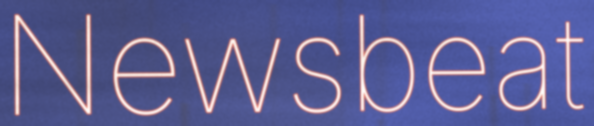
Newsbeat